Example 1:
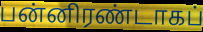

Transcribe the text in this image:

பன்னிரண்டாகப்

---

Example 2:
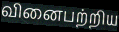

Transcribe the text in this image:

வினைபற்றிய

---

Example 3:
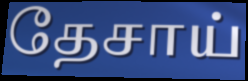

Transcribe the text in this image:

தேசாய்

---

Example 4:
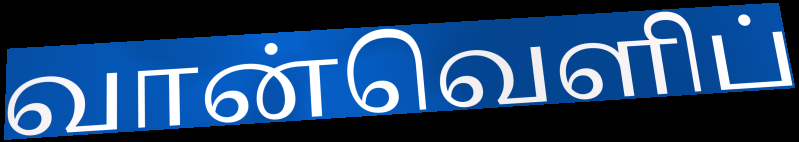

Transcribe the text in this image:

வான்வெளிப்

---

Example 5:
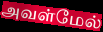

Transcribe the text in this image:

அவள்மேல்